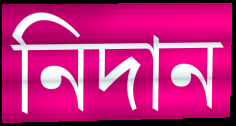
নিদান